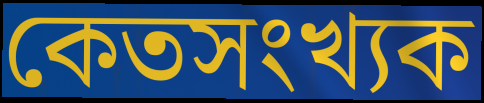
কেতসংখ্যক